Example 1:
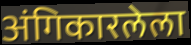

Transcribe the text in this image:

अंगिकारलेला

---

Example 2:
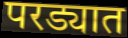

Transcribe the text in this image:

परड्यात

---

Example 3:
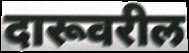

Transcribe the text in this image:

दारूवरील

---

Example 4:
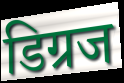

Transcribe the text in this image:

डिग्रज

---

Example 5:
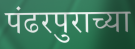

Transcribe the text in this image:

पंढरपुराच्या